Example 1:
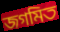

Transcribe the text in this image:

জগমিত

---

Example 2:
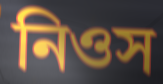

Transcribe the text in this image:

নিওস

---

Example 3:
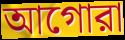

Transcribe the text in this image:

আগোরা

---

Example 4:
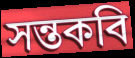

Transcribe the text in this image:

সন্তকবি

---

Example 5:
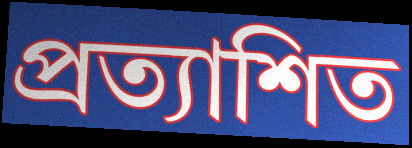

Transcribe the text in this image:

প্রত্যাশিত